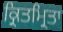
ਕ੍ਰਿਤਮ੍ਰਿਤਾ